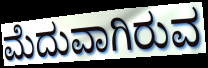
ಮೆದುವಾಗಿರುವ